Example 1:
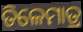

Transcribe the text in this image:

ତିଳେମାତ୍ର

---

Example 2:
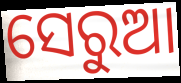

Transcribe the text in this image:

ସେରୁଆ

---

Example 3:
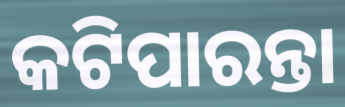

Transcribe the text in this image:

କଟିପାରନ୍ତା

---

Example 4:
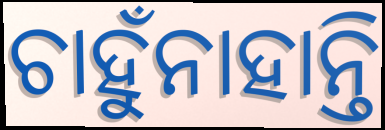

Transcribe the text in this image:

ଚାହୁଁନାହାନ୍ତି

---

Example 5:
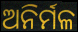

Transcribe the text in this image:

ଅନିର୍ମଳ